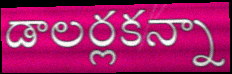
డాలర్లకన్నా